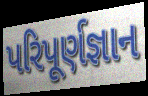
પરિપૂર્ણજ્ઞાન